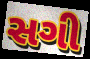
સગી